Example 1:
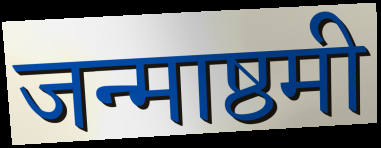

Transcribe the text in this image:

जन्माष्ठमी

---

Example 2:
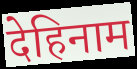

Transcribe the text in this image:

देहिनाम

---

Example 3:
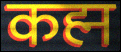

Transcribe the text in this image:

कह्म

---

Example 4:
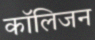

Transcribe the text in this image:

कॉलिजन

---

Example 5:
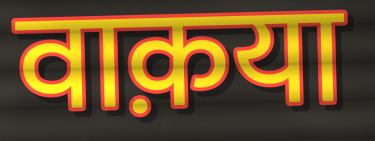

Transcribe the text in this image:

वाक़या